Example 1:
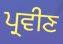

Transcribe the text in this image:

ਪ੍ਰਵੀਣ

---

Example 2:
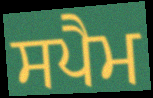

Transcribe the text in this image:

ਸਪੈਮ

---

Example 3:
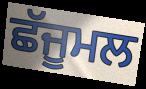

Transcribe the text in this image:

ਛੱਜੂਮਲ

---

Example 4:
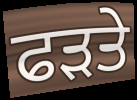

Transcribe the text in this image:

ਫੜਤੇ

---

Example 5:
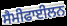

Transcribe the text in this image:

ਸੈਮੀਫਾਈਲਨ